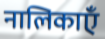
नालिकाएँ